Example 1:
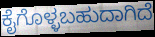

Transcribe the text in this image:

ಕೈಗೊಳ್ಳಬಹುದಾಗಿದೆ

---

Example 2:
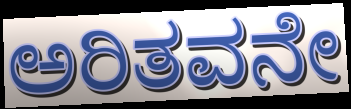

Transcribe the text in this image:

ಅರಿತವನೇ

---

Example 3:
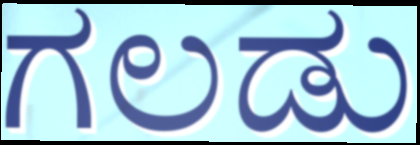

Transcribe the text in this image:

ಗಲಡು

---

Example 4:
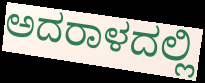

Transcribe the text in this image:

ಅದರಾಳದಲ್ಲಿ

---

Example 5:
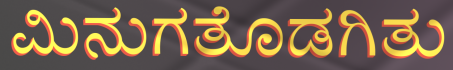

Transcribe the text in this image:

ಮಿನುಗತೊಡಗಿತು